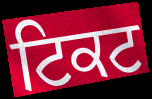
ਟਿਕਟ